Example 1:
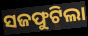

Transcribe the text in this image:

ସଜଫୁଟିଲା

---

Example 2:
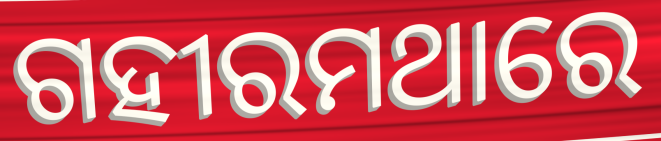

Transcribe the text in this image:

ଗହୀରମଥାରେ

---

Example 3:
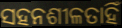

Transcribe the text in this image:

ସହନଶୀଳତାହିଁ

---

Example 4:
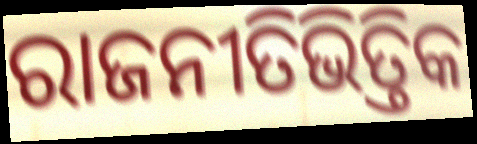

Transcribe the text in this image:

ରାଜନୀତିଭିତ୍ତିକ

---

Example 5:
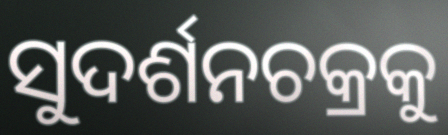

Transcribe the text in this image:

ସୁଦର୍ଶନଚକ୍ରକୁ